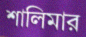
শালিমার